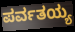
ಪರ್ವತಯ್ಯ